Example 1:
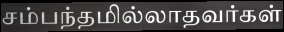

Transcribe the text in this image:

சம்பந்தமில்லாதவர்கள்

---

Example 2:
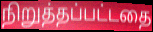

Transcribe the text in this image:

நிறுத்தப்பட்டதை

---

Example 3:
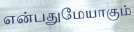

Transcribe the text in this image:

என்பதுமேயாகும்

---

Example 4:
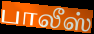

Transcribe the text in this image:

பாலீஸ்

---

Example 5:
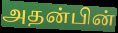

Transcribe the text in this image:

அதன்பின்